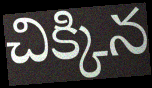
చిక్కిన